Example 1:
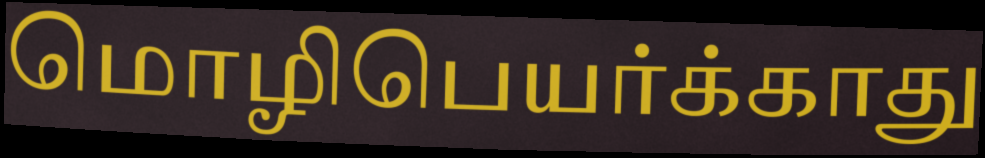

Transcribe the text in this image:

மொழிபெயர்க்காது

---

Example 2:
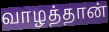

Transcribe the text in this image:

வாழத்தான்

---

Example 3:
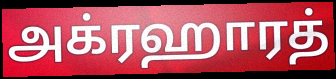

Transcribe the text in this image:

அக்ரஹாரத்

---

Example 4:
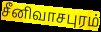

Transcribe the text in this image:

சீனிவாசபுரம்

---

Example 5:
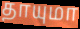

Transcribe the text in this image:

தாயுமா